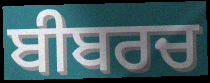
ਬੀਬਰਚ